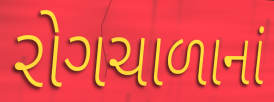
રોગચાળાનાં